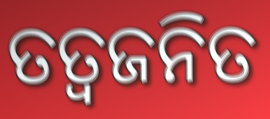
ତତ୍ଵଜନିତ